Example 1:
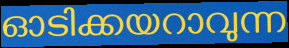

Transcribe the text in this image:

ഓടിക്കയറാവുന്ന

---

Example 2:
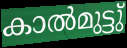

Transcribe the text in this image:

കാൽമുട്ടു്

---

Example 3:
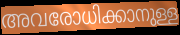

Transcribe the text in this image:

അവരോധിക്കാനുള്ള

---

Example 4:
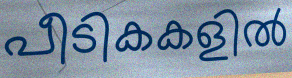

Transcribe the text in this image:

പീടികകളിൽ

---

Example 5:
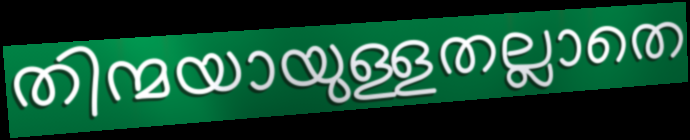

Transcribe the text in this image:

തിന്മയായുള്ളതല്ലാതെ